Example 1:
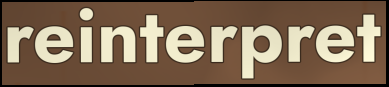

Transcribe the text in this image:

reinterpret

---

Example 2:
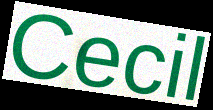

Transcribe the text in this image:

Cecil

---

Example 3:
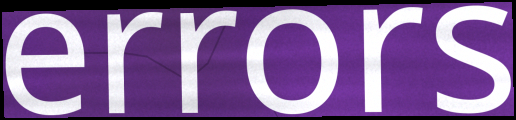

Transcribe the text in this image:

errors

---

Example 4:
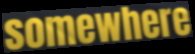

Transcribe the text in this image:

somewhere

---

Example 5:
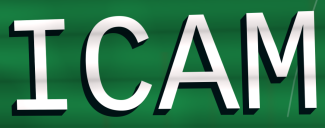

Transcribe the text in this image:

ICAM